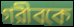
গরীবকে